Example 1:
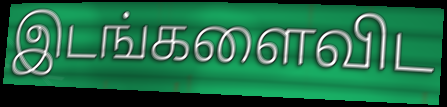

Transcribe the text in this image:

இடங்களைவிட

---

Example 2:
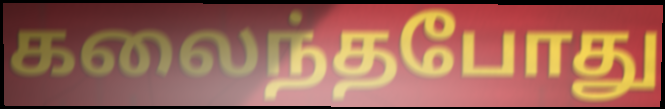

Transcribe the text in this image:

கலைந்தபோது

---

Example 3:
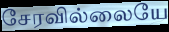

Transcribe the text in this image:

சேரவில்லையே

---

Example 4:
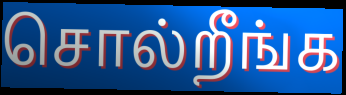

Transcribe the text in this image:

சொல்றீங்க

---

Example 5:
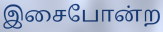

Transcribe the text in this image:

இசைபோன்ற